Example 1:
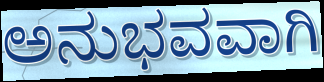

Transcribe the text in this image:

ಅನುಭವವಾಗಿ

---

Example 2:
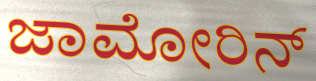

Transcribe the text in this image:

ಜಾಮೋರಿನ್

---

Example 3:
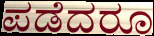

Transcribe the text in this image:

ಪಡೆದರೂ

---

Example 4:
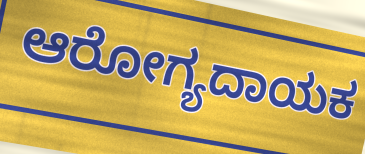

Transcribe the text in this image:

ಆರೋಗ್ಯದಾಯಕ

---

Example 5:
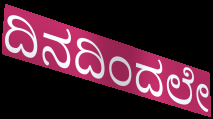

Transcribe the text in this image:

ದಿನದಿಂದಲೇ